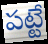
పట్టే